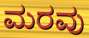
ಮರವು